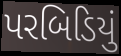
પરબિડિયું